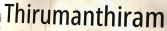
Thirumanthiram